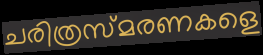
ചരിത്രസ്മരണകളെ